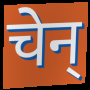
चेन्